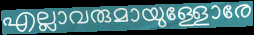
എല്ലാവരുമായുള്ളോരേ